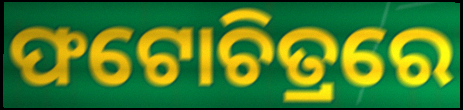
ଫଟୋଚିତ୍ରରେ